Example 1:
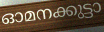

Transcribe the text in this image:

ഓമനക്കുട്ടാ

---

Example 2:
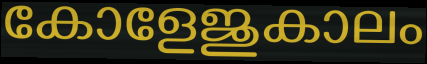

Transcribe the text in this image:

കോളേജുകാലം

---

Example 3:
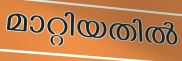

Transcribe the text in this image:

മാറ്റിയതിൽ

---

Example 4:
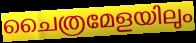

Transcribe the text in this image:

ചൈത്രമേളയിലും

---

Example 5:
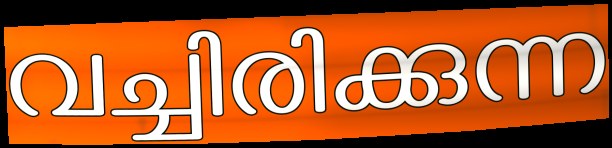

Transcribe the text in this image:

വച്ചിരിക്കുന്ന